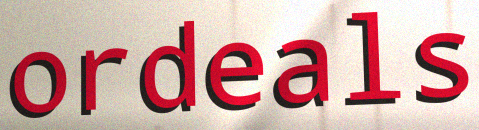
ordeals